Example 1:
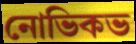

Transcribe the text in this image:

নোভিকভ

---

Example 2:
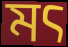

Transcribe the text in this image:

মৎ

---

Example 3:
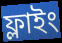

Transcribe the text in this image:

ফ্লাইং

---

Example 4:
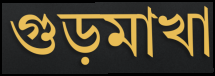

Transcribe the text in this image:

গুড়মাখা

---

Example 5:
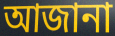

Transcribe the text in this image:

আজানা